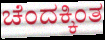
ಚೆಂದಕ್ಕಿಂತ